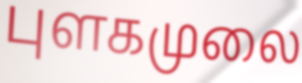
புளகமுலை